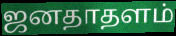
ஜனதாதளம்